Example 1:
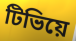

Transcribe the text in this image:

টিভিয়ে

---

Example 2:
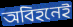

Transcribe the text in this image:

অবিহনেই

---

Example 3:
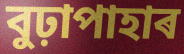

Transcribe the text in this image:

বুঢ়াপাহাৰ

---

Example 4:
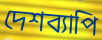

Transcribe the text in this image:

দেশব্যাপি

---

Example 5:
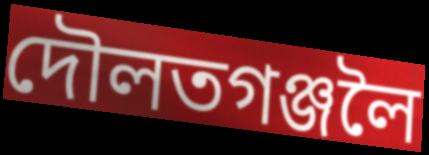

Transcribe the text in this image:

দৌলতগঞ্জলৈ